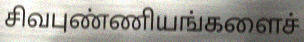
சிவபுண்ணியங்களைச்